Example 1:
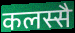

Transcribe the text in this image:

कलस्सै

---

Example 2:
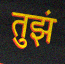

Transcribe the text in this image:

तुझं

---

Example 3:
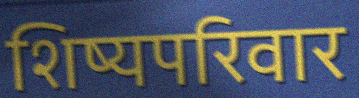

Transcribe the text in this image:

शिष्यपरिवार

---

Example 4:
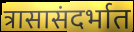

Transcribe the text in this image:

त्रासासंदर्भात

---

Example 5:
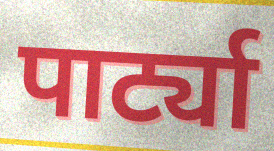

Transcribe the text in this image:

पार्ट्या